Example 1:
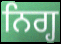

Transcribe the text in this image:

ਨਿਗ੍ਹ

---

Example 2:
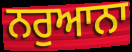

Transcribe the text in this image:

ਨਰੁਆਨਾ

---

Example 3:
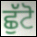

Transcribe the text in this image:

ਛੁੱਟੋ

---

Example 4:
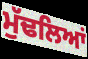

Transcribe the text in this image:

ਮੁੱਢਲਿਆਂ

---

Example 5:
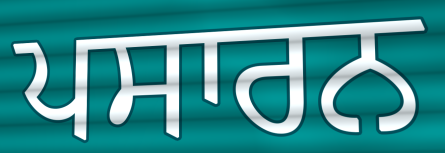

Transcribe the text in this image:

ਪਸਾਰਨ